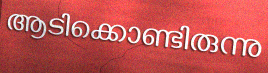
ആടിക്കൊണ്ടിരുന്നു